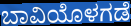
ಬಾವಿಯೊಳಗಡೆ